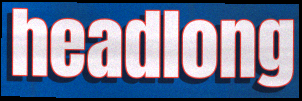
headlong